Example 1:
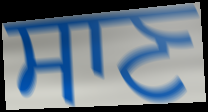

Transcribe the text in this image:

ਸਾਣ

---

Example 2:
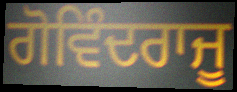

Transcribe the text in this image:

ਗੋਵਿੰਦਰਾਜੂ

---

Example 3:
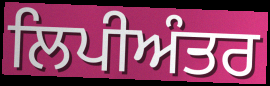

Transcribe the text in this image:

ਲਿਪੀਅੰਤਰ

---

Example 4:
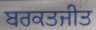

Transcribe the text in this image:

ਬਰਕਤਜੀਤ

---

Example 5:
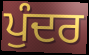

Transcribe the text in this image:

ਪੁੰਦਰ